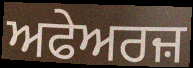
ਅਫੇਅਰਜ਼